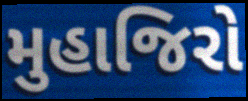
મુહાજિરો